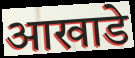
आखाडे